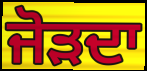
ਜੋੜਦਾ